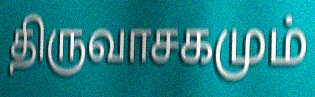
திருவாசகமும்